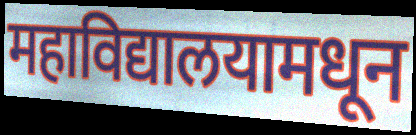
महाविद्यालयामधून